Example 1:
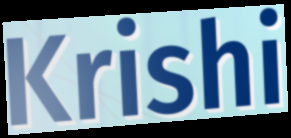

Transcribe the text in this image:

Krishi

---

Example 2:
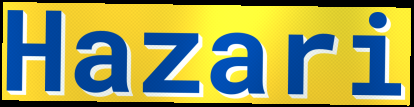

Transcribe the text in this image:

Hazari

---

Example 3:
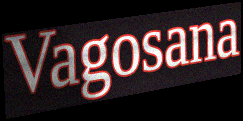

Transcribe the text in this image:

Vagosana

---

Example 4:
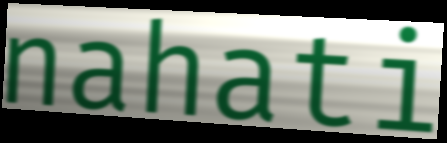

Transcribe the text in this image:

nahati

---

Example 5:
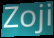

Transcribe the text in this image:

Zoji